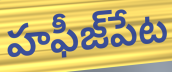
హఫీజ్‌పేట